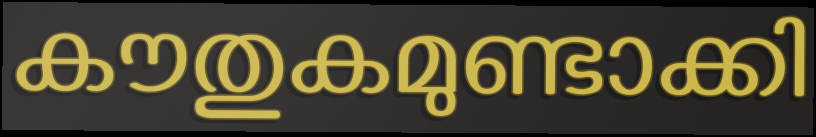
കൗതുകമുണ്ടാക്കി